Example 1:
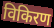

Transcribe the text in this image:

विकिरण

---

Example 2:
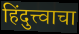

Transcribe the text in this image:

हिंदुत्त्वाचा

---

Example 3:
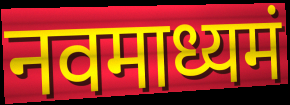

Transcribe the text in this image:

नवमाध्यमं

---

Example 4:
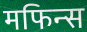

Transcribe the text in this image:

मफिन्स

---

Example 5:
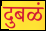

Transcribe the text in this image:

दुबळं